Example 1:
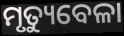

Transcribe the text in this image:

ମୃତ୍ୟୁବେଳା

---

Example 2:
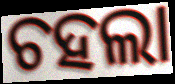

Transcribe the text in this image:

ଚହଲା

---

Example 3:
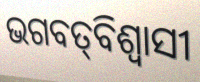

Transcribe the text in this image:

ଭଗବତ୍‌ବିଶ୍ଵାସୀ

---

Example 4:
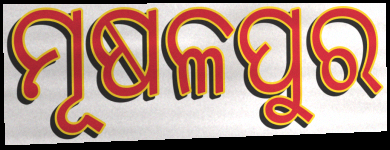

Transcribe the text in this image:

ମୂଷଳପୁର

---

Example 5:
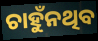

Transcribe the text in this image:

ଚାହୁଁନଥିବ